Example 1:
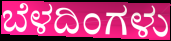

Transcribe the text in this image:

ಬೆಳದಿಂಗಳು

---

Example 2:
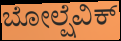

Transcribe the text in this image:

ಬೋಲ್ಷೆವಿಕ್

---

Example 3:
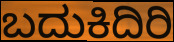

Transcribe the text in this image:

ಬದುಕಿದಿರಿ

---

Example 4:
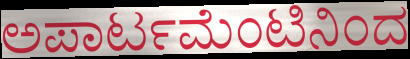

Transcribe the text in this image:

ಅಪಾರ್ಟಮೆಂಟಿನಿಂದ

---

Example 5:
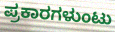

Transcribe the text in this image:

ಪ್ರಕಾರಗಳುಂಟು